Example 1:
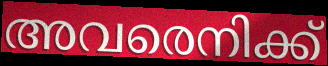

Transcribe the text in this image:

അവരെനിക്ക്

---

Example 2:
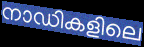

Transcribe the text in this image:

നാഡികളിലെ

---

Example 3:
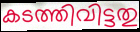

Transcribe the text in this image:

കടത്തിവിട്ടതു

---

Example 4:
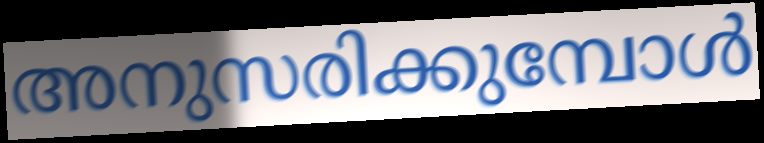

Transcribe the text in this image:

അനുസരിക്കുമ്പോൾ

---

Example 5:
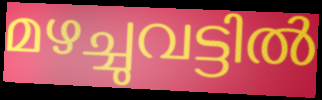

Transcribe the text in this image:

മഴച്ചുവട്ടിൽ